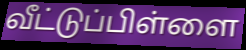
வீட்டுப்பிள்ளை